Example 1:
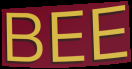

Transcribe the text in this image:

BEE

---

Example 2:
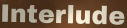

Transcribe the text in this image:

Interlude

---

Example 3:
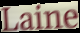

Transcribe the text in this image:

Laine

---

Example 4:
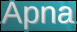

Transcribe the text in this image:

Apna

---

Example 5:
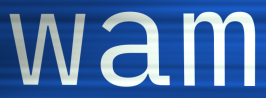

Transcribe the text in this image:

wam